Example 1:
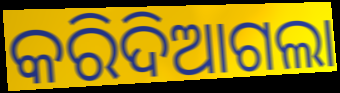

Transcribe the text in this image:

କରିଦିଆଗଲା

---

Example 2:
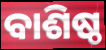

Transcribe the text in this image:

ବାଶିଷ୍ଠ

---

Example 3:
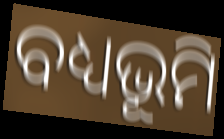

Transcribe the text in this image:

ବଧ୍ୟଭୂମି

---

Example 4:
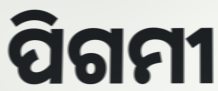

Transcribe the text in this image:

ପିଗମୀ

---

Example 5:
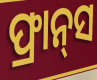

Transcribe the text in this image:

ଫ୍ରାନ୍‌ସ